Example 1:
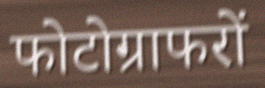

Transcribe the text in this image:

फोटोग्राफरों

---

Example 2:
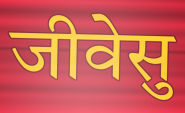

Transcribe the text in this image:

जीवेसु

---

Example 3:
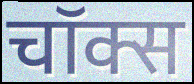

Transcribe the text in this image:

चॉक्स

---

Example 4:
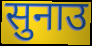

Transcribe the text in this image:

सुनाउ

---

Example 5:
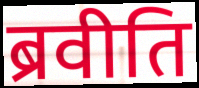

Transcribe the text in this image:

ब्रवीति